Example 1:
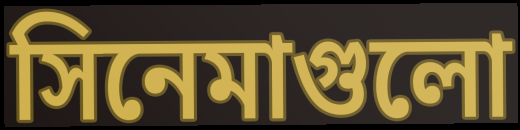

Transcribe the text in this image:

সিনেমাগুলো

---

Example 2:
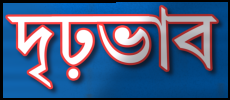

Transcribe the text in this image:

দৃঢ়ভাব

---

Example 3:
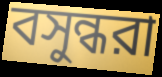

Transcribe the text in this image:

বসুন্ধরা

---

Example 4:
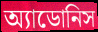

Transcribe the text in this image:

অ্যাডোনিস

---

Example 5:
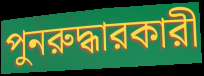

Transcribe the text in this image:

পুনরুদ্ধারকারী